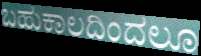
ಬಹುಕಾಲದಿಂದಲೂ